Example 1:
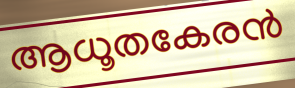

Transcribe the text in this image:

ആധൂതകേരൻ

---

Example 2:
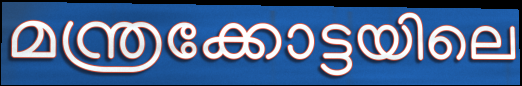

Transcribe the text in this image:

മന്ത്രക്കോട്ടയിലെ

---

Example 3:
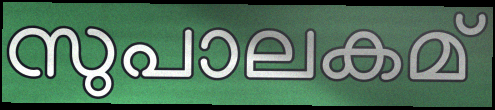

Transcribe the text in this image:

സുപാലകമ്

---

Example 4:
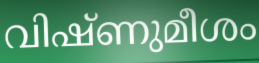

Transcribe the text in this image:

വിഷ്ണുമീശം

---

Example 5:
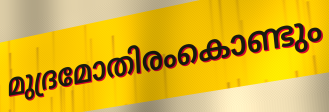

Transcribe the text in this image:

മുദ്രമോതിരംകൊണ്ടും